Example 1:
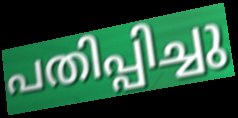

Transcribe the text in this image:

പതിപ്പിച്ചു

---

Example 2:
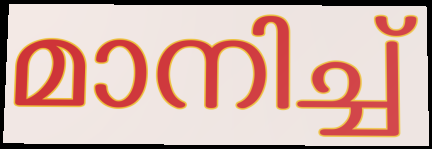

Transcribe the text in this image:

മാനിച്ച്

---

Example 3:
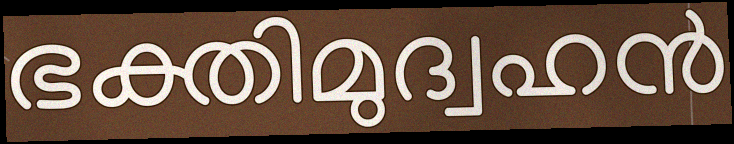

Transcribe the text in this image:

ഭക്തിമുദ്വഹൻ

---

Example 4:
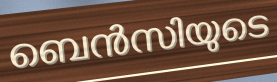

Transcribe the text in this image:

ബെൻസിയുടെ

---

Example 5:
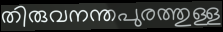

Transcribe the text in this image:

തിരുവനന്തപുരത്തുള്ള